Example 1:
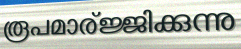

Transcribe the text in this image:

രൂപമാര്ജ്ജിക്കുന്നു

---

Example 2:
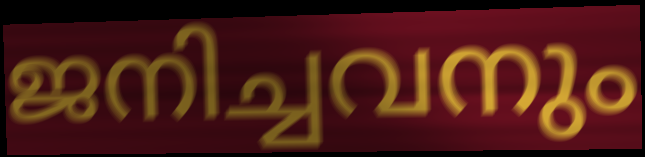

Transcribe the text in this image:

ജനിച്ചവനും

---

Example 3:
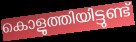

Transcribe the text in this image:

കൊളുത്തിയിട്ടുണ്ട്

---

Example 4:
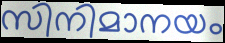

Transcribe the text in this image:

സിനിമാനയം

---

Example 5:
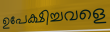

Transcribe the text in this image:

ഉപേക്ഷിച്ചവളെ